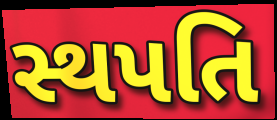
સ્થપતિ